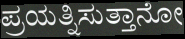
ಪ್ರಯತ್ನಿಸುತ್ತಾನೋ